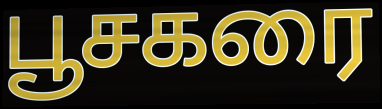
பூசகரை